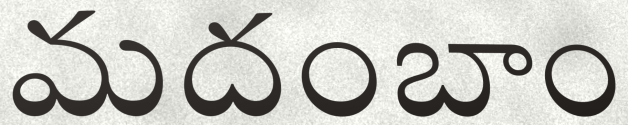
మదంబాం